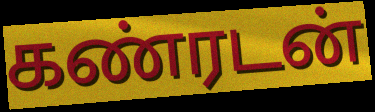
கண்ரடன்